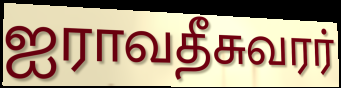
ஐராவதீசுவரர்